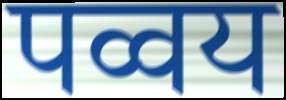
पव्वय